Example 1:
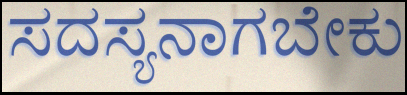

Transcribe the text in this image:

ಸದಸ್ಯನಾಗಬೇಕು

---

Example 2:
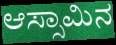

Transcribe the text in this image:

ಆಸ್ಸಾಮಿನ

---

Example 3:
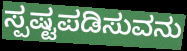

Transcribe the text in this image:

ಸ್ಪಷ್ಟಪಡಿಸುವನು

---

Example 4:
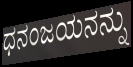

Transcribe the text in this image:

ಧನಂಜಯನನ್ನು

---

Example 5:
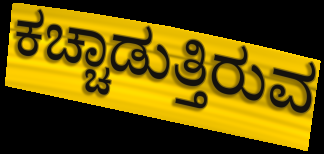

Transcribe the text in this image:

ಕಚ್ಚಾಡುತ್ತಿರುವ